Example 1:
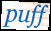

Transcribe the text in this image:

puff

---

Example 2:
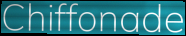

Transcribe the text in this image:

Chiffonade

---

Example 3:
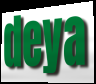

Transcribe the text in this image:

deya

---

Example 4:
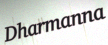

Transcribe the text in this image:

Dharmanna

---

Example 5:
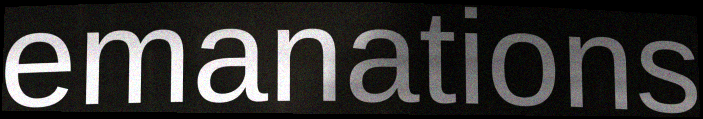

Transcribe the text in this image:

emanations